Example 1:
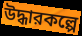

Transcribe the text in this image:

উদ্ধারকল্পে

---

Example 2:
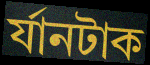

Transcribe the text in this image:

র্যানটাক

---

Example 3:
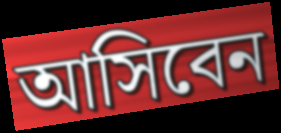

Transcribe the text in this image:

আসিবেন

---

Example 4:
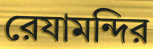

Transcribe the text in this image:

রেযামন্দির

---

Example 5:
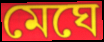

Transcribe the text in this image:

মেঘে